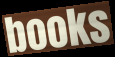
books